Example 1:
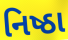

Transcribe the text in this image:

નિષ્ઠા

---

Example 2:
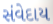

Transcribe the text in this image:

સંવેદાય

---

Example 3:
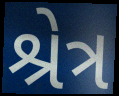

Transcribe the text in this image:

શ્રેત્ર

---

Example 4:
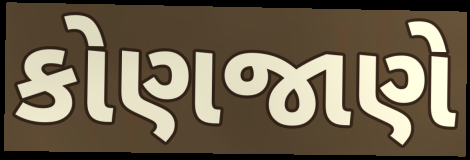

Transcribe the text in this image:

કોણજાણે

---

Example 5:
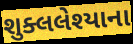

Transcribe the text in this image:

શુક્લલેશ્યાના